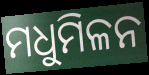
ମଧୁମିଳନ